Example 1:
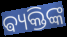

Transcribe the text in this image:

ଵ୍ୟକ୍ତିଙ୍କ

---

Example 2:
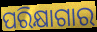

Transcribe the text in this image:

ପରିକ୍ଷାଗାର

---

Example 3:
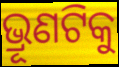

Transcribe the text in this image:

ଭ୍ରୂଣଟିକୁ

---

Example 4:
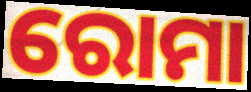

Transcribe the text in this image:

ରୋମା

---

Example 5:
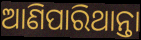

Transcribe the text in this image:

ଆଣିପାରିଥାନ୍ତା